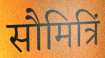
सौमित्रिं